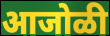
आजोळी